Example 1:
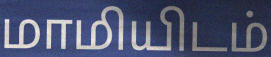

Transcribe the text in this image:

மாமியிடம்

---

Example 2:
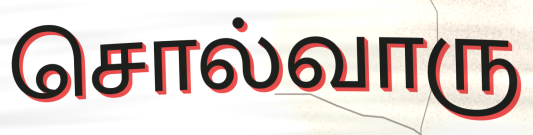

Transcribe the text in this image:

சொல்வாரு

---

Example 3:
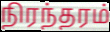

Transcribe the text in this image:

நிரந்தரம்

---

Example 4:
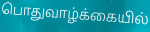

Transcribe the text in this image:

பொதுவாழ்க்கையில்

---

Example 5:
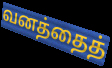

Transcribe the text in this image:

வனத்தைத்